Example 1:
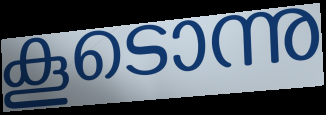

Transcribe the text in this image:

കൂടൊന്നു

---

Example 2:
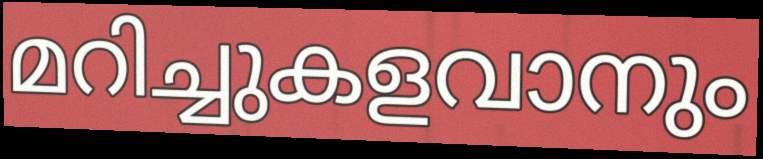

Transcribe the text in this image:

മറിച്ചുകളവാനും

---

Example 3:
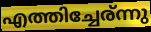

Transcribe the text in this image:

എത്തിച്ചേര്ന്നു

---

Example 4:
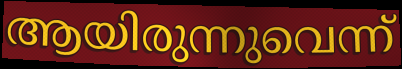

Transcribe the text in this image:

ആയിരുന്നുവെന്ന്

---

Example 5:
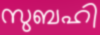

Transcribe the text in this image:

സുബഹി